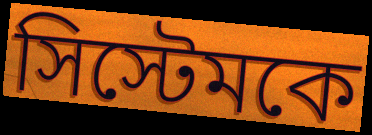
সিস্টেমকে